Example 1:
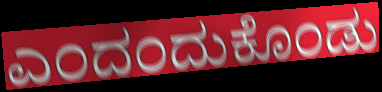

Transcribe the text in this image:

ಎಂದಂದುಕೊಂಡು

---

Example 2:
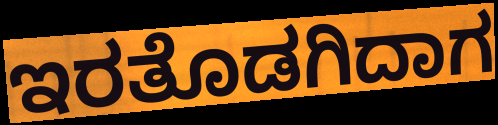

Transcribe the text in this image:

ಇರತೊಡಗಿದಾಗ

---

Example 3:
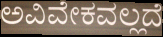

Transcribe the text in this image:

ಅವಿವೇಕವಲ್ಲದೆ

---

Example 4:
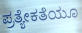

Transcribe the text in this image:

ಪ್ರತ್ಯೇಕತೆಯೂ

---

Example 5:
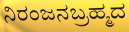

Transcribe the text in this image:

ನಿರಂಜನಬ್ರಹ್ಮದ